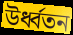
উর্ধ্বতন